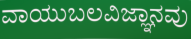
ವಾಯುಬಲವಿಜ್ಞಾನವು